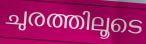
ചുരത്തിലൂടെ